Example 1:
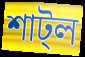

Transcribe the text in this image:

শাট্ল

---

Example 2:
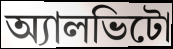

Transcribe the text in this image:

অ্যালভিটো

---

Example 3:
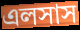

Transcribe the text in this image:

এলসাস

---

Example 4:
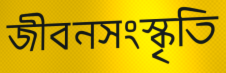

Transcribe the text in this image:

জীবনসংস্কৃতি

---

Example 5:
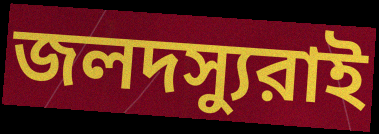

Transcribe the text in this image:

জলদস্যুরাই